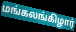
மங்கலங்கிழார்